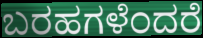
ಬರಹಗಳೆಂದರೆ